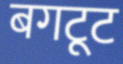
बगटूट